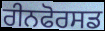
ਰੀਨਫੋਰਸਡ